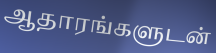
ஆதாரங்களுடன்